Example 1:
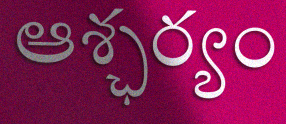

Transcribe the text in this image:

ఆశ్ఛర్యం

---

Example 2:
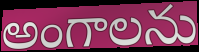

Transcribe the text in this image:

అంగాలను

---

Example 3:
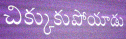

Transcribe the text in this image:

చిక్కుకుపోయాడు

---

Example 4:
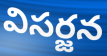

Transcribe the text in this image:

విసర్జన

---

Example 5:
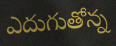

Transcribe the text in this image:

ఎదుగుతోన్న